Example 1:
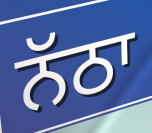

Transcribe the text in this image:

ਨੱਠਾ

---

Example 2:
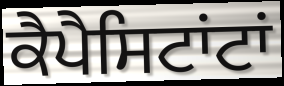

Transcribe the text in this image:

ਕੈਪੈਸਿਟਾਂਟਾਂ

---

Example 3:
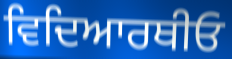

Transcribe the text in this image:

ਵਿਦਿਆਰਥੀਓ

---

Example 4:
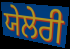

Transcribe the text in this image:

ਯੇਲੇਰੀ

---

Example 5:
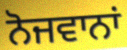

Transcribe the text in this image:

ਨੋਜਵਾਨਾਂ